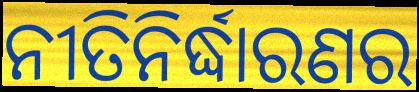
ନୀତିନିର୍ଦ୍ଧାରଣର